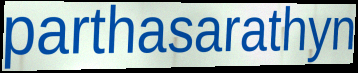
parthasarathyn